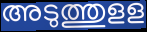
അടുത്തുളള